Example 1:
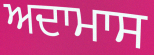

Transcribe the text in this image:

ਅਦਾਮਾਸ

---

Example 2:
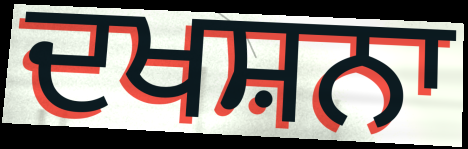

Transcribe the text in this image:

ਦਖਸ਼ਨਾ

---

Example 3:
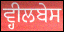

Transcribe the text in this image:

ਵ੍ਹੀਲਬੇਸ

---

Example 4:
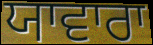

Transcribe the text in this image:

ਯਾਵਾਰਾ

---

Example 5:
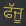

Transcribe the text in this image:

ਫੱਜੂ